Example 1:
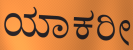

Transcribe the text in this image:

ಯಾಕರೀ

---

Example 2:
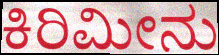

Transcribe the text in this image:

ಕಿರಿಮೀನು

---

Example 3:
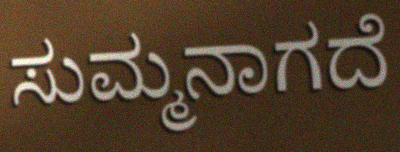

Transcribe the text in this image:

ಸುಮ್ಮನಾಗದೆ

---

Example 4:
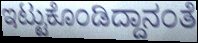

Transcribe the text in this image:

ಇಟ್ಟುಕೊಂಡಿದ್ದಾನಂತೆ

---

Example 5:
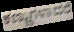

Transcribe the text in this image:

ಕಣ್ಣುಗಳಾದರೆ